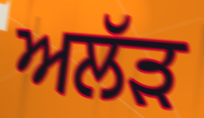
ਅਲੱੜ